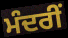
ਮੰਦਰੀਂ